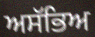
ਅਸੱਭਿਅ